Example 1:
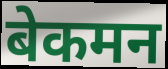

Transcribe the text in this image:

बेकमन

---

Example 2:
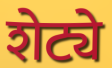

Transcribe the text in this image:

शेट्ये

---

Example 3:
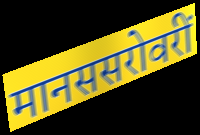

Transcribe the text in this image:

मानससरोवरीं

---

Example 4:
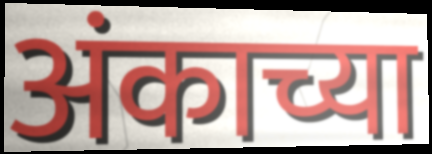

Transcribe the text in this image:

अंकाच्या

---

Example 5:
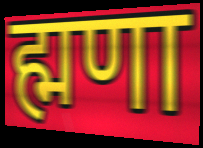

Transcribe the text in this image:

ह्मणा